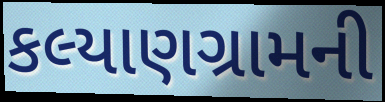
કલ્યાણગ્રામની